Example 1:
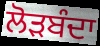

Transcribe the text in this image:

ਲੋੜਬੰਦਾ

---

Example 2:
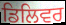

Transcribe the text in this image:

ਡਿਲਿਵਰ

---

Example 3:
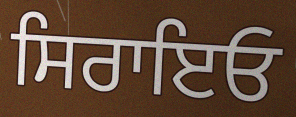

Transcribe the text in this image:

ਸਿਰਾਇਓ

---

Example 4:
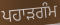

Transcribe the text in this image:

ਪਹਾੜਗੰਮ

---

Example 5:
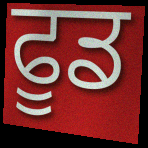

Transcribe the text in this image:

ਫੂਡ